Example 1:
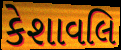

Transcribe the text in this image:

કેશાવલિ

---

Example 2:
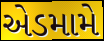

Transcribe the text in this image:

એડમામે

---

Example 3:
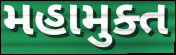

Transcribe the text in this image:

મહામુક્ત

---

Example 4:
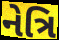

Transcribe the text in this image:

નેત્રિ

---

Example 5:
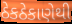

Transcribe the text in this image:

ઠેકઠેકાણેથી